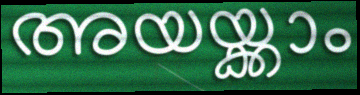
അയയ്ക്കാം